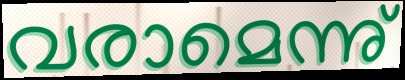
വരാമെന്നു്